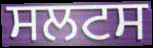
ਸਲਟਸ